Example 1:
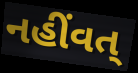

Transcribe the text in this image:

નહીંવત્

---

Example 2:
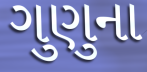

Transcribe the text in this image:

ગુણુના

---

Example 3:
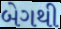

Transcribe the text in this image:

બેગથી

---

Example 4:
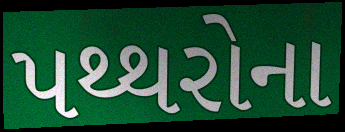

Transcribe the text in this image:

પથ્થરોના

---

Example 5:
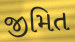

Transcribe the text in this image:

જીમિત